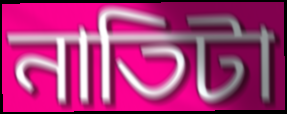
নাতিটা